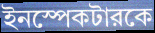
ইনস্পেকটারকে